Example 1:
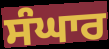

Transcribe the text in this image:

ਸੰਘਾਰ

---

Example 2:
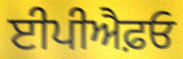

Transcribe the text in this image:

ਈਪੀਐਫ਼ਓ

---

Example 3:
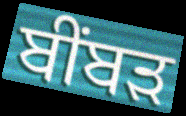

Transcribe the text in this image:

ਬੀੰਬੜ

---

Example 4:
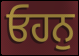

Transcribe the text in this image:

ਓਹਨੁ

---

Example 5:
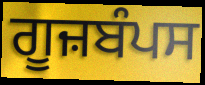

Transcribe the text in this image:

ਗੂਜ਼ਬੰਪਸ